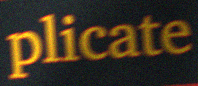
plicate